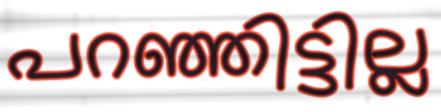
പറഞ്ഞിട്ടില്ല